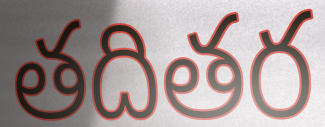
తదితర